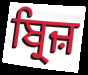
ਬ੍ਰਿਜ਼